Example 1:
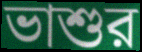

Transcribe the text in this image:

ভাশুর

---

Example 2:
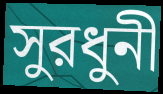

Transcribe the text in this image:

সুরধুনী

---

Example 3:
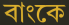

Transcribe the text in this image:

বাংকে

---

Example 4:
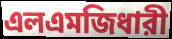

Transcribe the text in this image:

এলএমজিধারী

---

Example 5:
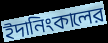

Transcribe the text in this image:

ইদানিংকালের